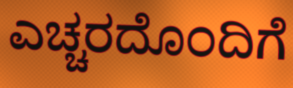
ಎಚ್ಚರದೊಂದಿಗೆ